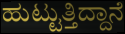
ಹುಟ್ಟುತ್ತಿದ್ದಾನೆ